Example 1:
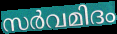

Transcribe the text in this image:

സർവമിദം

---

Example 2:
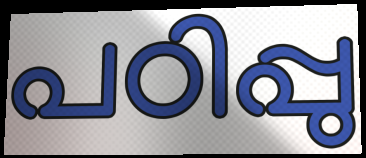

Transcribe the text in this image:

പഠിപ്പു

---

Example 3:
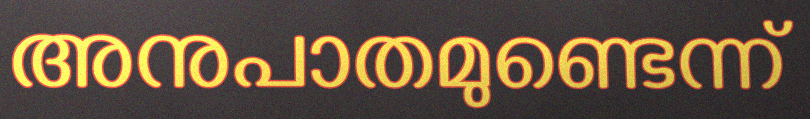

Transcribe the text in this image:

അനുപാതമുണ്ടെന്ന്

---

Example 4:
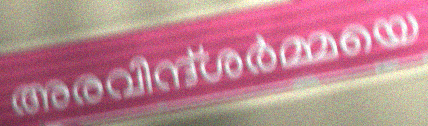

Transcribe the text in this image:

അരവിന്ദ്ശർമ്മയെ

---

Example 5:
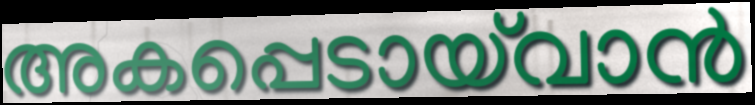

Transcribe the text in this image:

അകപ്പെടായ്‌വാൻ